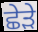
ਛੇੜੇ